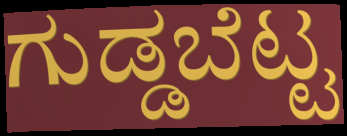
ಗುಡ್ಡಬೆಟ್ಟ